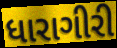
ધારાગીરી